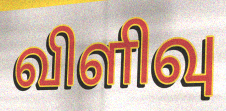
விளிவு